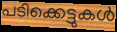
പടിക്കെട്ടുകൾ